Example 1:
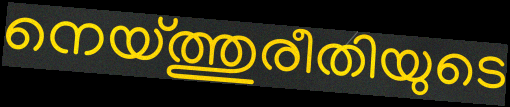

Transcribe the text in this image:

നെയ്ത്തുരീതിയുടെ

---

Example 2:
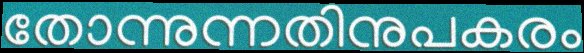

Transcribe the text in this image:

തോന്നുന്നതിനുപകരം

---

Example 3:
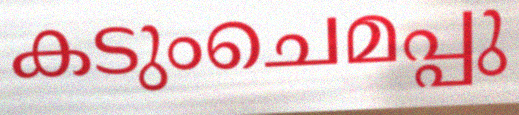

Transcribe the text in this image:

കടുംചെമപ്പു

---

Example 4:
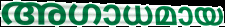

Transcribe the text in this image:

അഗാധമായ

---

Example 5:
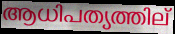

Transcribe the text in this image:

ആധിപത്യത്തില്